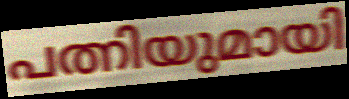
പത്നിയുമായി